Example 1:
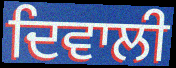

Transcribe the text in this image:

ਦਿਵਾਲੀ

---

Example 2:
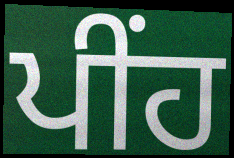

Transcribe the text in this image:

ਪੀਂਹ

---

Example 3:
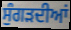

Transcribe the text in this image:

ਸੁੰਗੜਦੀਆਂ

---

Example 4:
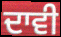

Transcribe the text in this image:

ਦਾਵੀ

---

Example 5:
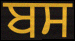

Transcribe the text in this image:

ਬਸ